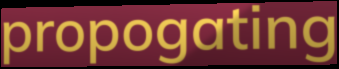
propogating